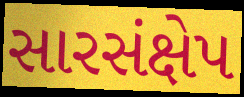
સારસંક્ષેપ